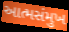
આત્મસંમુખ